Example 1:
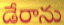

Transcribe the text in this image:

డేరాను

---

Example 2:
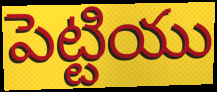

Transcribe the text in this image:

పెట్టియు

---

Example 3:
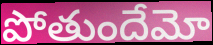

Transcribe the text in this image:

పోతుందేమో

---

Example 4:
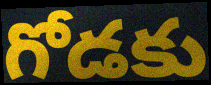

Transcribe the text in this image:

గోడకు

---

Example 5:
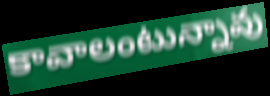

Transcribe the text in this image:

కావాలంటున్నావు